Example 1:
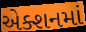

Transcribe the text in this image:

એક્શનમાં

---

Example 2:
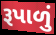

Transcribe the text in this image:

રૂપાળું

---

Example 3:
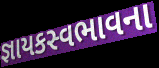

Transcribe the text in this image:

જ્ઞાયકસ્વભાવના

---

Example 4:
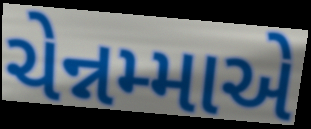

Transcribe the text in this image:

ચેન્નમ્માએ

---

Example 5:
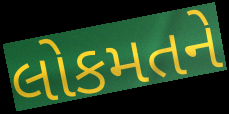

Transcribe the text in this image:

લોકમતને